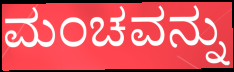
ಮಂಚವನ್ನು